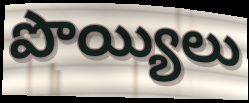
పొయ్యిలు